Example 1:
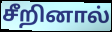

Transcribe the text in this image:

சீறினால்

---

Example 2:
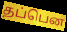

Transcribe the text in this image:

தப்பென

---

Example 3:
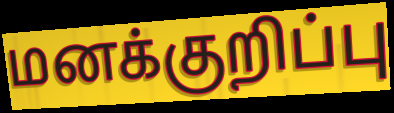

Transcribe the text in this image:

மனக்குறிப்பு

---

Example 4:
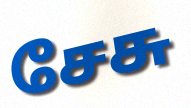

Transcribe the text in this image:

சேசு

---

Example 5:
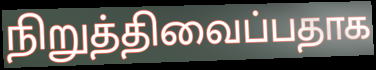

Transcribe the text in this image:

நிறுத்திவைப்பதாக